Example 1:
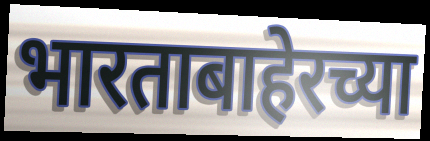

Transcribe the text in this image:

भारताबाहेरच्या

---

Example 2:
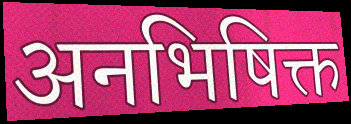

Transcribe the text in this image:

अनभिषिक्त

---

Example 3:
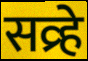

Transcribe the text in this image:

सव्र्हे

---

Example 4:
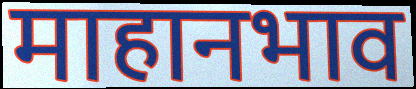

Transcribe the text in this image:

माहानभाव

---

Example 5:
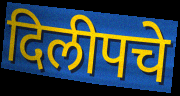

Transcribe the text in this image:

दिलीपचे